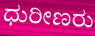
ಧುರೀಣರು